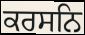
ਕਰਸਨਿ